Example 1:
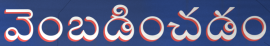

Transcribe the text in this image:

వెంబడించడం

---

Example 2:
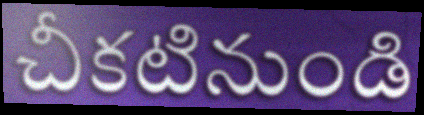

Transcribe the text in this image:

చీకటినుండి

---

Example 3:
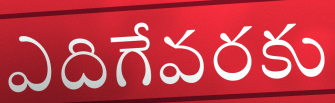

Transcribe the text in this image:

ఎదిగేవరకు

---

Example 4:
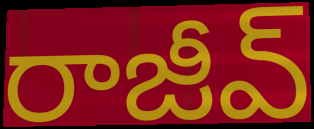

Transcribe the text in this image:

రాజీవ్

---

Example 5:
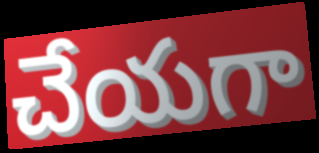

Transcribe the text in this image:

చేయగా